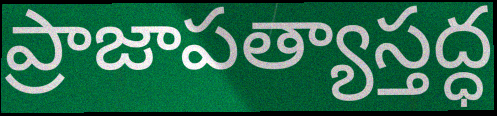
ప్రాజాపత్యాస్తద్ధ